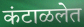
कंटाळलेत